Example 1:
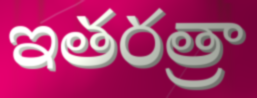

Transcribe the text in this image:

ఇతరత్రా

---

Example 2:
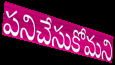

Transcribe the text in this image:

పనిచేసుకోమని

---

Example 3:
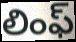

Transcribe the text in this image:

లింఫ్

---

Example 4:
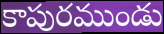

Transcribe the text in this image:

కాపురముండు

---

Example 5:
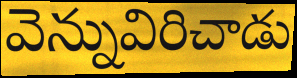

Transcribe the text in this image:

వెన్నువిరిచాడు